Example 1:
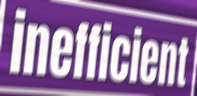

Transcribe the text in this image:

inefficient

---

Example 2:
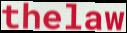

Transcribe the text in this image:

thelaw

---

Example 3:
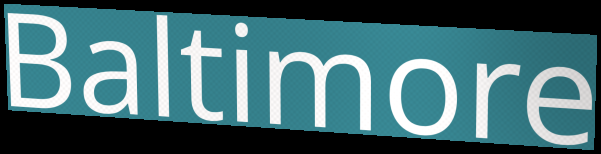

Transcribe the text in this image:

Baltimore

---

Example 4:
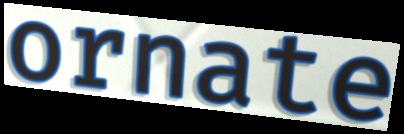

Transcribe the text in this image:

ornate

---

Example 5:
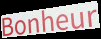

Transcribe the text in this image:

Bonheur